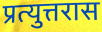
प्रत्युत्तरास